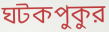
ঘটকপুকুর